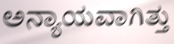
ಅನ್ಯಾಯವಾಗಿತ್ತು